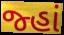
જ્હાં